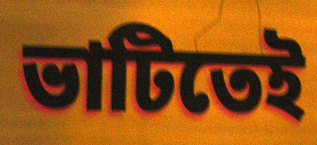
ভাটিতেই